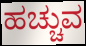
ಹಚ್ಚುವ